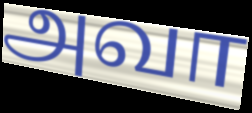
அவா